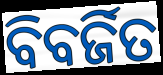
ବିବର୍ଜିତ